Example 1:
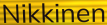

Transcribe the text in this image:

Nikkinen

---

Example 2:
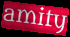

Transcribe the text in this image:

amity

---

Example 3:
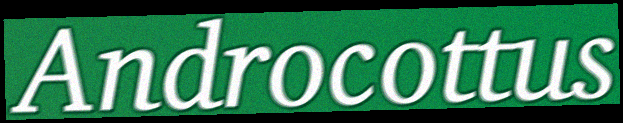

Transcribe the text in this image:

Androcottus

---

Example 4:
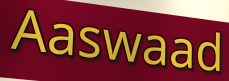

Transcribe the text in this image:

Aaswaad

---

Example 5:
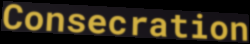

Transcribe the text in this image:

Consecration